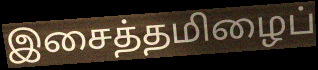
இசைத்தமிழைப்